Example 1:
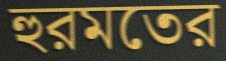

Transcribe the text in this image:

হুরমতের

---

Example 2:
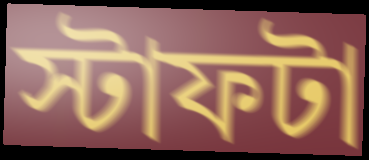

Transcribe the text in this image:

স্টাফটা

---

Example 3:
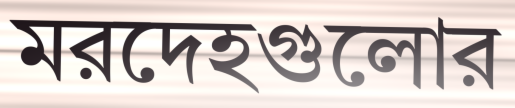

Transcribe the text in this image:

মরদেহগুলোর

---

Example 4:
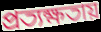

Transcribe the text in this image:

প্রত্যক্ষতায়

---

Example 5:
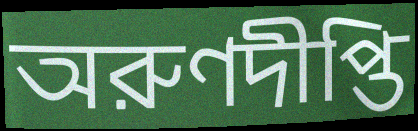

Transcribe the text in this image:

অরুণদীপ্তি